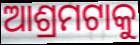
ଆଶ୍ରମଟାକୁ